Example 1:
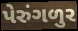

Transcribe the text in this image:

પેરુંગળુર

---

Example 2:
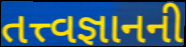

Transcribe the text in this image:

તત્ત્વજ્ઞાનની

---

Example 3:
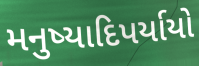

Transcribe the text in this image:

મનુષ્યાદિપર્યાયો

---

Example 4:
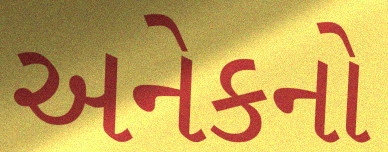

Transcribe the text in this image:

અનેકનો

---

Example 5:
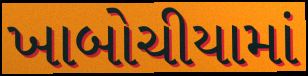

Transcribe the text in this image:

ખાબોચીયામાં